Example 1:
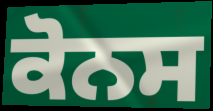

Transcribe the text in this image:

ਕੋਨਸ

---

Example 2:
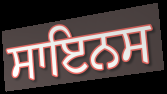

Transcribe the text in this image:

ਸਾਇਨਸ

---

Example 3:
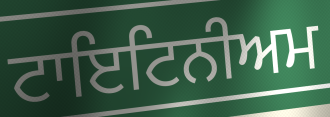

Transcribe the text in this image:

ਟਾਇਟਿਨੀਅਮ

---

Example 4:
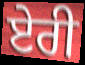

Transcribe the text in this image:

ਏਰੀ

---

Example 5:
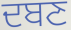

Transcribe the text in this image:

ਦਬਣ